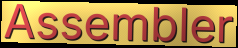
Assembler